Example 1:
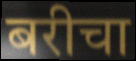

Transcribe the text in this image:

बरीचा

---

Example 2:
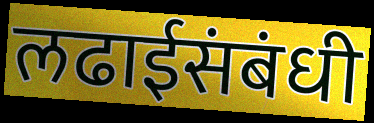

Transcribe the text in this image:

लढाईसंबंधी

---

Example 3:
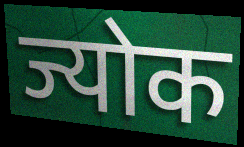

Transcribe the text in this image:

ज्योक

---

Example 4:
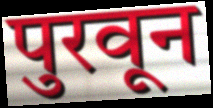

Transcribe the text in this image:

पुरवून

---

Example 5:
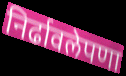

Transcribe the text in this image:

निर्ढावलेपणा